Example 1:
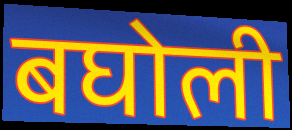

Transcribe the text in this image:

बघोली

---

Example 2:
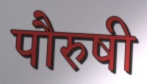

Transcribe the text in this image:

पौरुषी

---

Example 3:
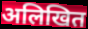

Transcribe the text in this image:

अलिखित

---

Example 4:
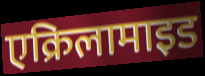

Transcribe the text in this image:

एक्रिलामाइड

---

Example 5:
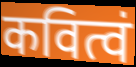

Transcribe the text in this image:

कवित्वं